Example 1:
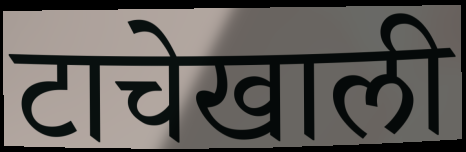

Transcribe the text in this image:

टाचेखाली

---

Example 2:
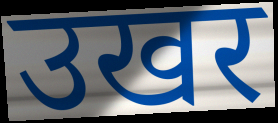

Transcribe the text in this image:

उखर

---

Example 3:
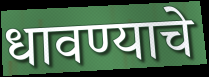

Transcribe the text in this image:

धावण्याचे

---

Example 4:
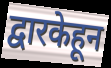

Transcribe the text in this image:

द्वारकेहून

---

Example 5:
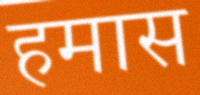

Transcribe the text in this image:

हमास